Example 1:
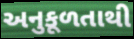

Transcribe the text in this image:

અનુકૂળતાથી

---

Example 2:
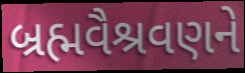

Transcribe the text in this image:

બ્રહ્મવૈશ્રવણને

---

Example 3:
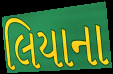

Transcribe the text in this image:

લિયાના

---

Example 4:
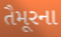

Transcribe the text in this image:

તૈમૂરના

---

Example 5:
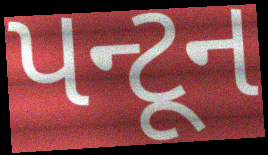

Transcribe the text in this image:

પન્ટૂન